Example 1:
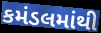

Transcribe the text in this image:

કમંડલમાંથી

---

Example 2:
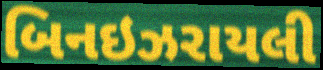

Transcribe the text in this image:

બિનઇઝરાયલી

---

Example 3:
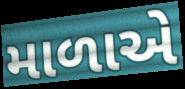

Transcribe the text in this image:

માળાએ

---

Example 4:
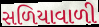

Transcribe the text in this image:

સળિયાવાળી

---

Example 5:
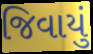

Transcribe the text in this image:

જિવાયું